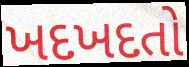
ખદખદતો